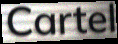
Cartel